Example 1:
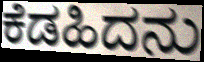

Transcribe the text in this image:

ಕೆಡಹಿದನು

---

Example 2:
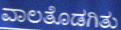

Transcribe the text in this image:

ವಾಲತೊಡಗಿತು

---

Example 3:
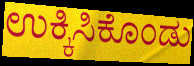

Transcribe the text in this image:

ಉಕ್ಕಿಸಿಕೊಂಡು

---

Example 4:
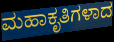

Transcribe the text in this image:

ಮಹಾಕೃತಿಗಳಾದ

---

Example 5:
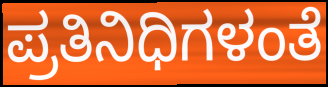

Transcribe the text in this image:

ಪ್ರತಿನಿಧಿಗಳಂತೆ